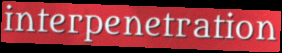
interpenetration